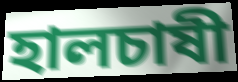
হালচাষী